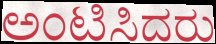
ಅಂಟಿಸಿದರು